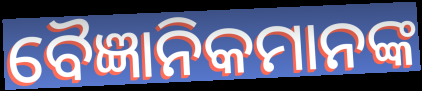
ବୈଜ୍ଞାନିକମାନଙ୍କ